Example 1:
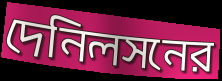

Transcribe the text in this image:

দেনিলসনের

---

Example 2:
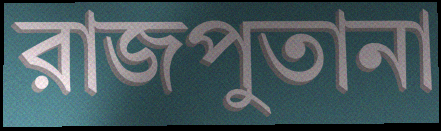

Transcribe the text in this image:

রাজপুতানা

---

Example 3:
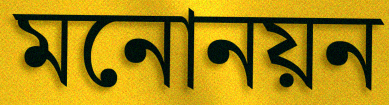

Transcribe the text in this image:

মনোনয়ন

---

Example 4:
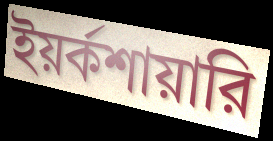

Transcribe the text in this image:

ইয়র্কশায়ারি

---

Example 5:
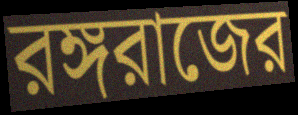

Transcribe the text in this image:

রঙ্গরাজের